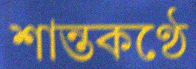
শান্তকণ্ঠে